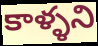
కాళ్ళని